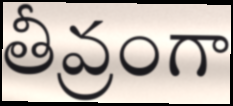
తీవ్రంగా